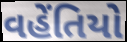
વહેંતિયો